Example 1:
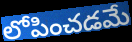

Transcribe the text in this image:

లోపించడమే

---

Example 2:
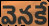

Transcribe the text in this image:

వెనకే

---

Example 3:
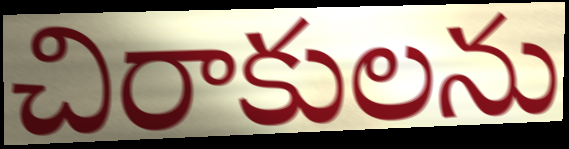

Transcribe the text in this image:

చిరాకులను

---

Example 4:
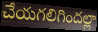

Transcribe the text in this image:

చేయగలిగిందల్లా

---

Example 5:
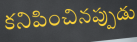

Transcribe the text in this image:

కనిపించినప్పుడు